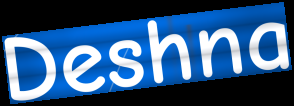
Deshna